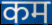
कम